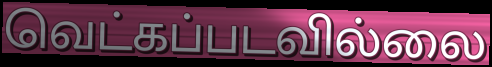
வெட்கப்படவில்லை